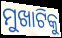
ମୁଖାଟିକୁ